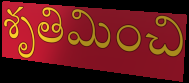
శృతిమించి